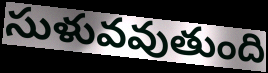
సుళువవుతుంది